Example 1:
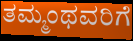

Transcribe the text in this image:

ತಮ್ಮಂಥವರಿಗೆ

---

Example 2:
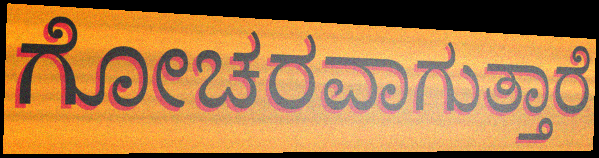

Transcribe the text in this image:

ಗೋಚರವಾಗುತ್ತಾರೆ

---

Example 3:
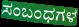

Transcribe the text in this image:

ಸಂಬಂಧಗಳ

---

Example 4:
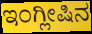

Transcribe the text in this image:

ಇಂಗ್ಲೀಷಿನ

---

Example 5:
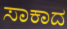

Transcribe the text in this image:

ಸಾಕಾದ